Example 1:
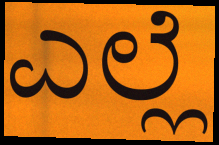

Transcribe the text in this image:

ಎಲ್ಲೆ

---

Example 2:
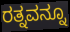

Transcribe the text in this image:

ರತ್ನವನ್ನೂ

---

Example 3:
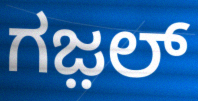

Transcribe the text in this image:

ಗಜ಼ಲ್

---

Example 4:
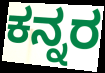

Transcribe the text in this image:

ಕನ್ನರ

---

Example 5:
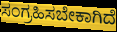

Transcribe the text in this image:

ಸಂಗ್ರಹಿಸಬೇಕಾಗಿದೆ